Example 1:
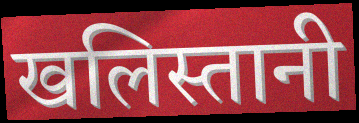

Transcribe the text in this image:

खलिस्तानी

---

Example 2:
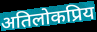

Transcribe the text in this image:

अतिलोकप्रिय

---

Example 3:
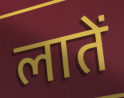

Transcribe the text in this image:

लातें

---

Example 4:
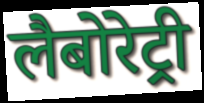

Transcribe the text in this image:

लैबोरेट्री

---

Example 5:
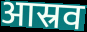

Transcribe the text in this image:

आस्रव